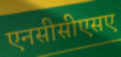
एनसीसीएसए